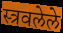
स्त्रवलेले